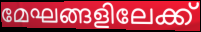
മേഘങ്ങളിലേക്ക്